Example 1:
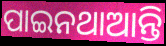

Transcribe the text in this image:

ପାଇନଥାଆନ୍ତି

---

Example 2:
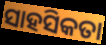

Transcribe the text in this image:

ସାହସିକତା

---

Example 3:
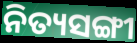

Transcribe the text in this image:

ନିତ୍ୟସଙ୍ଗୀ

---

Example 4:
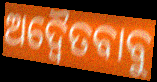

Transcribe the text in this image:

ଅଦ୍ୱୈତବାବୁ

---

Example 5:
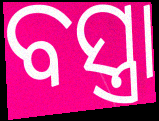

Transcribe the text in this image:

ବସ୍ତ୍ରା